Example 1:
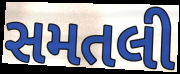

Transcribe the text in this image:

સમતલી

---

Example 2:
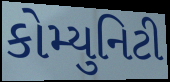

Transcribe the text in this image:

કોમ્યુનિટી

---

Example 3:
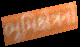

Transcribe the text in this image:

ભૂમિક્ષેત્રનો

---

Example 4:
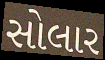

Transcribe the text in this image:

સોલાર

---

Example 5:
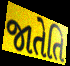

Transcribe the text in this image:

જાતેતિ